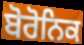
ਬੋਰੋਨਿਕ